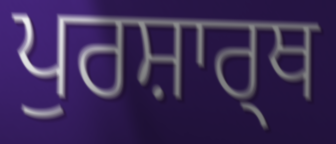
ਪੁਰਸ਼ਾਰ੍ਥ